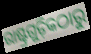
ରାଷ୍ଟ୍ରଗୁଡ଼ିକଠାରୁ